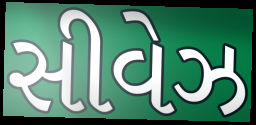
સીવેઝ